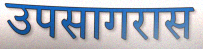
उपसागरास